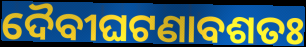
ଦୈବୀଘଟଣାବଶତଃ